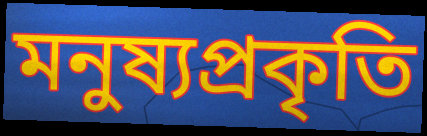
মনুষ্যপ্রকৃতি